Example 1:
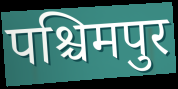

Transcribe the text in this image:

पश्चिमपुर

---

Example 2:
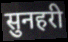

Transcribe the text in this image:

सुनहरी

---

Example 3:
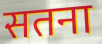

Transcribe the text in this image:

सतना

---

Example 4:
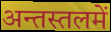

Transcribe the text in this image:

अन्तस्तलमें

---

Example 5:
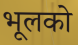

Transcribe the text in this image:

भूलको